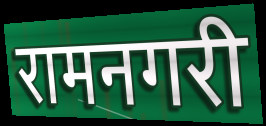
रामनगरी